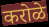
करोळे